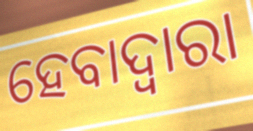
ହେବାଦ୍ୱାରା